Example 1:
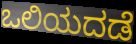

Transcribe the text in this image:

ಒಲಿಯದಡೆ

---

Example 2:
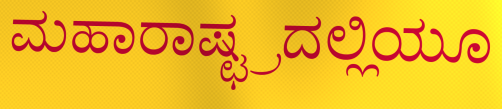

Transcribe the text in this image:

ಮಹಾರಾಷ್ಟ್ರದಲ್ಲಿಯೂ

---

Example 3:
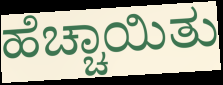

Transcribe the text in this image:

ಹೆಚ್ಚಾಯಿತು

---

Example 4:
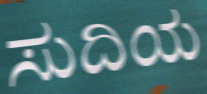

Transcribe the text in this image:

ಸುದಿಯ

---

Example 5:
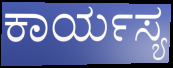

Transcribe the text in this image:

ಕಾರ್ಯಸ್ಯ